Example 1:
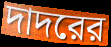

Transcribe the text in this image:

দাদরের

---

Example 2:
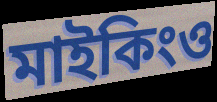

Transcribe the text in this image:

মাইকিংও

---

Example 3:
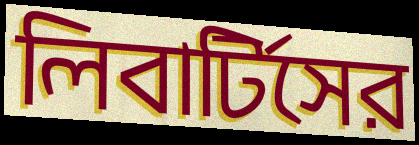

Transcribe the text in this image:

লিবার্টিসের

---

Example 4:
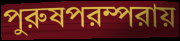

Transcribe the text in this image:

পুরুষপরম্পরায়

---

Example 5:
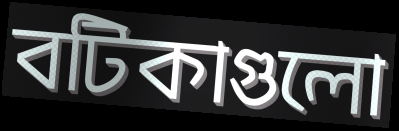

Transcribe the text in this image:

বটিকাগুলো